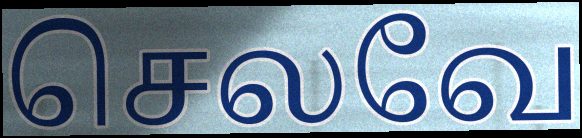
செலவே